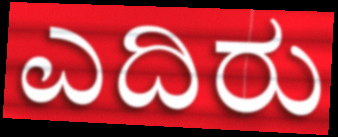
ಎದಿರು